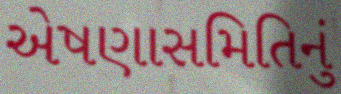
એષણાસમિતિનું